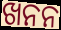
ଖନନ